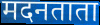
मदनताता